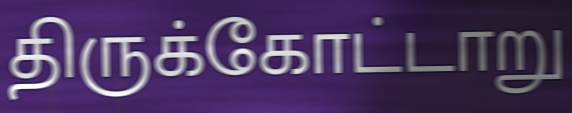
திருக்கோட்டாறு